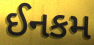
ઈનકમ